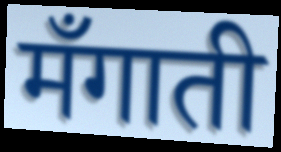
मँगाती